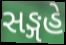
સઙ્ગહે